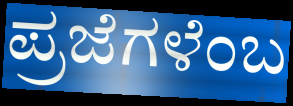
ಪ್ರಜೆಗಳೆಂಬ